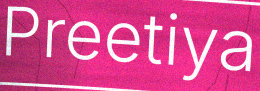
Preetiya